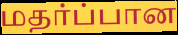
மதர்ப்பான